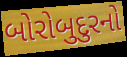
બોરોબુદુરનો